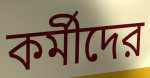
কর্মীদের